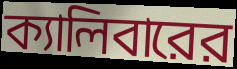
ক্যালিবারের